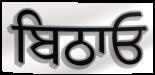
ਬਿਠਾਓ